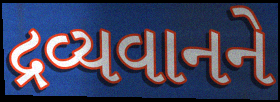
દ્રવ્યવાનને